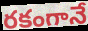
రకంగానే